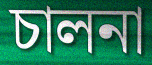
চালনা